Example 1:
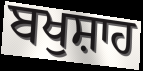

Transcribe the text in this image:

ਬਖੁਸ਼ਾਹ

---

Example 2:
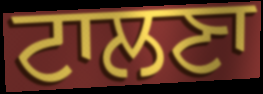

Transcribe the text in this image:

ਟਾਲਣਾ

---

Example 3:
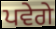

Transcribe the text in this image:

ਪਵੇਗੇ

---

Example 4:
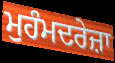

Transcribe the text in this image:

ਮੁਹੰਮਦਰੇਜ਼ਾ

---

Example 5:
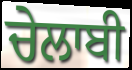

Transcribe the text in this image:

ਚੇਲਾਬੀ